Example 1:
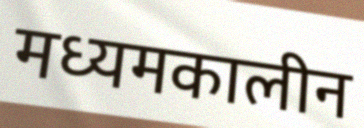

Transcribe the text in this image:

मध्यमकालीन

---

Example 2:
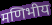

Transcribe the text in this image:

मणिभीय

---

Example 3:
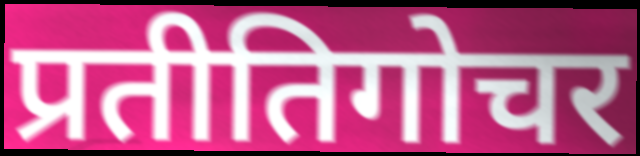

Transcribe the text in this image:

प्रतीतिगोचर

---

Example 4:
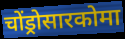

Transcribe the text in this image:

चोंड्रोसारकोमा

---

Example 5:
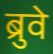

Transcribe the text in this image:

ब्रुवे